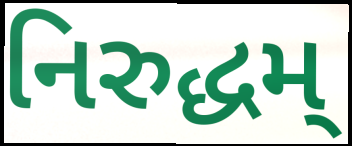
નિરુદ્ધમ્